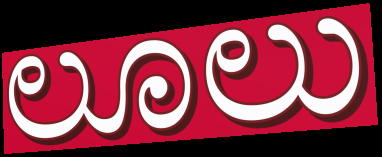
ಲೂಲು